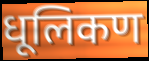
धूलिकण